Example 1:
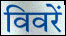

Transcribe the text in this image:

विवरें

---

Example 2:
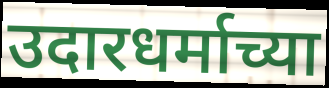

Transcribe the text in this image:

उदारधर्माच्या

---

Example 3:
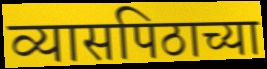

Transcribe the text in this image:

व्यासपिठाच्या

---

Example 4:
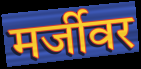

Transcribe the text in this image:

मर्जीवर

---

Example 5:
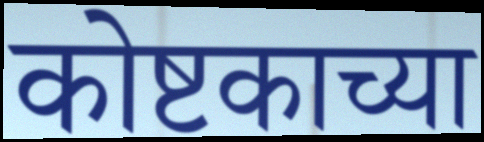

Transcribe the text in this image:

कोष्टकाच्या